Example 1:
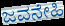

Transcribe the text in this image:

ಜವನೇಹಿ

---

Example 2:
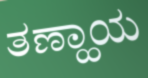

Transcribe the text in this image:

ತಣ್ಹಾಯ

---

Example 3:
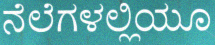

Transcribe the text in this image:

ನೆಲೆಗಳಲ್ಲಿಯೂ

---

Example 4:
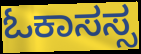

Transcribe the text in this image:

ಓಕಾಸಸ್ಸ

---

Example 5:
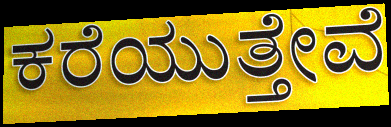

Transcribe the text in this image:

ಕರೆಯುತ್ತೇವೆ